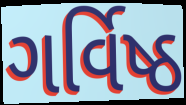
ગર્વિષ્ઠ